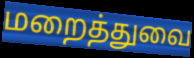
மறைத்துவை